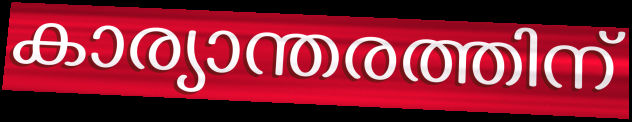
കാര്യാന്തരത്തിന്